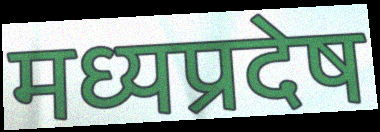
मध्यप्रदेष